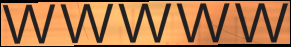
wwwww